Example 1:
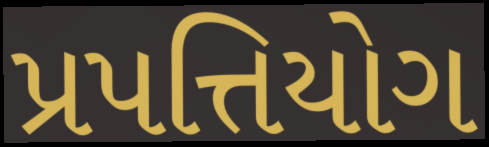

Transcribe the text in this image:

પ્રપત્તિયોગ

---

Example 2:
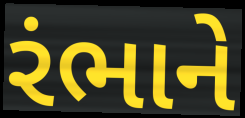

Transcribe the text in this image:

રંભાને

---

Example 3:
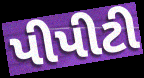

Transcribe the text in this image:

પીપીટી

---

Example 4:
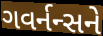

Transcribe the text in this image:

ગવર્નન્સને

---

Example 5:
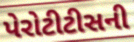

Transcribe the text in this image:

પેરોટીટીસની